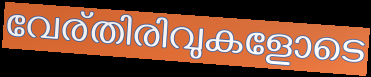
വേര്തിരിവുകളോടെ